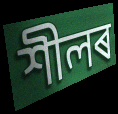
শীলৰ